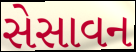
સેસાવન